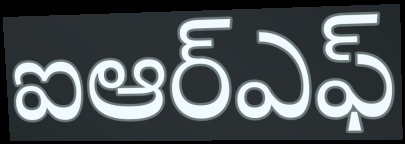
ఐఆర్ఎఫ్